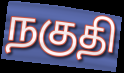
நகுதி